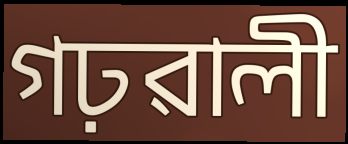
গঢ়ৱালী